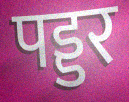
पड्डर